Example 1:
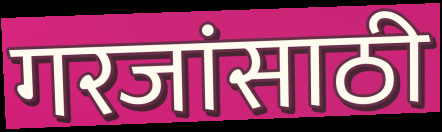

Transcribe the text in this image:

गरजांसाठी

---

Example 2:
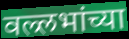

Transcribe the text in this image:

वल्लभांच्या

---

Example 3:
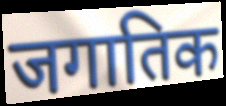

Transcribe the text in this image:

जगातिक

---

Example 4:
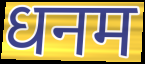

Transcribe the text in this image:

धनम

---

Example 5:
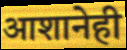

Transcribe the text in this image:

आशानेही